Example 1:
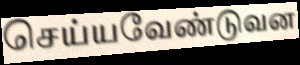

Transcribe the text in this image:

செய்யவேண்டுவன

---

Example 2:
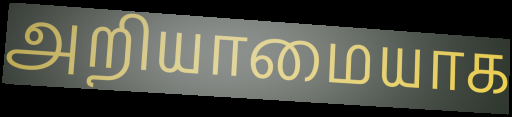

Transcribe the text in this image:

அறியாமையாக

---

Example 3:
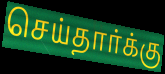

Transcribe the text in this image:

செய்தார்க்கு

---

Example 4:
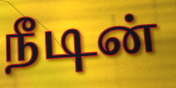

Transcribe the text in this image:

நீடின்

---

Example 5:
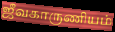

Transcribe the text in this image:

ஜீவகாருணியம்